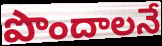
పొందాలనే